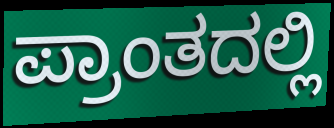
ಪ್ರಾಂತದಲ್ಲಿ